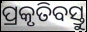
ପ୍ରକୃତିବସ୍ତୁ